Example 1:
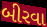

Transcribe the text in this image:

બીરવા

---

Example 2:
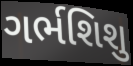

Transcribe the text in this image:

ગર્ભશિશુ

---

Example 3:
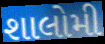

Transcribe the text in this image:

શાલોમી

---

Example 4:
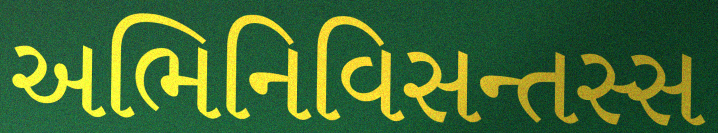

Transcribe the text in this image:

અભિનિવિસન્તસ્સ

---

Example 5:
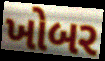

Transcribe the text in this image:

ખોબર